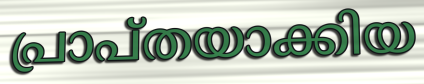
പ്രാപ്തയാക്കിയ